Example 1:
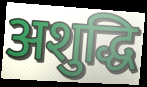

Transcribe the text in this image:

अशुद्धि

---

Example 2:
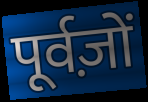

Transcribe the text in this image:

पूर्वज़ों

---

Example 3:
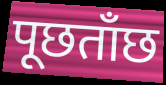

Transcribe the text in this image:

पूछताँछ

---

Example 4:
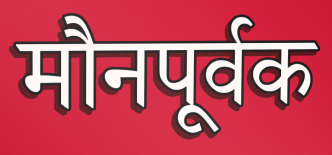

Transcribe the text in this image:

मौनपूर्वक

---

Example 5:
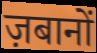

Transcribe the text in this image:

ज़बानों